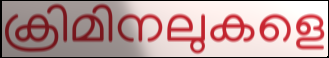
ക്രിമിനലുകളെ